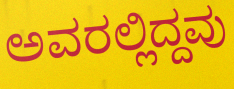
ಅವರಲ್ಲಿದ್ದವು